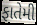
ફાતેમી